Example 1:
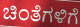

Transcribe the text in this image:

ಚಿಂತೆಗಳಿಗೆ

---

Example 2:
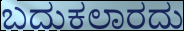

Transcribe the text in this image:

ಬದುಕಲಾರದು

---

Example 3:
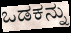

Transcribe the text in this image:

ಒಡಕನ್ನು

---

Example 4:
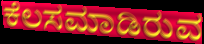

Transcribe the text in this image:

ಕೆಲಸಮಾಡಿರುವ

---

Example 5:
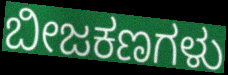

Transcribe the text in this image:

ಬೀಜಕಣಗಳು